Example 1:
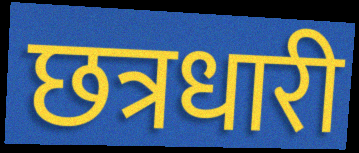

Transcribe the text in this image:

छत्रधारी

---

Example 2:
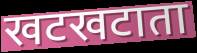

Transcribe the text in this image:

खटखटाता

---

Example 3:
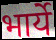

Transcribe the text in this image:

भार्ये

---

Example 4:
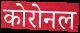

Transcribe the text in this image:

कोरोनल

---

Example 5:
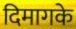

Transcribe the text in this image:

दिमागके